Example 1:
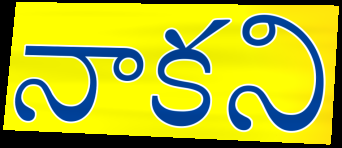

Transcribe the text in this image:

నాకని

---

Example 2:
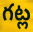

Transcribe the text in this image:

గట్ల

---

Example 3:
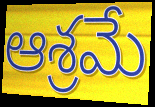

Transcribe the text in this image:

ఆశ్రమే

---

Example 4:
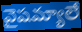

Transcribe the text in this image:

వైషమ్యాలే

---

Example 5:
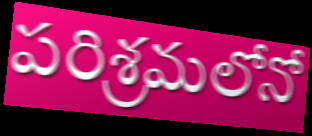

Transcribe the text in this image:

పరిశ్రమలోనో